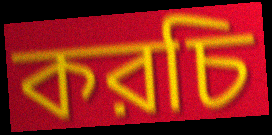
করচি